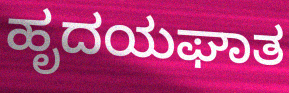
ಹೃದಯಘಾತ